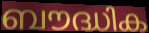
ബൗദ്ധിക